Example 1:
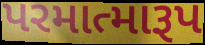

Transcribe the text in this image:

પરમાત્મારૂપ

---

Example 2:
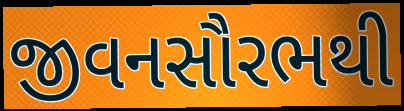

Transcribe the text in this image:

જીવનસૌરભથી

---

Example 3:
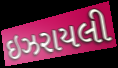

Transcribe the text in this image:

ઇઝરાયલી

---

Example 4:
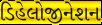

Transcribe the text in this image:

ડિહેલોજીનેશન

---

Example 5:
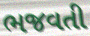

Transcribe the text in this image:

ભજવતી